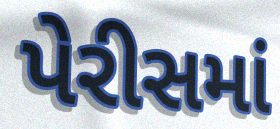
પેરીસમાં